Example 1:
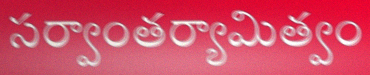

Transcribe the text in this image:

సర్వాంతర్యామిత్వం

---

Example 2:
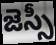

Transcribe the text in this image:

జెస్సీ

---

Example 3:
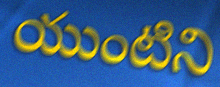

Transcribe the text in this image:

యుంటిని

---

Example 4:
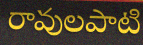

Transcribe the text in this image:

రావులపాటి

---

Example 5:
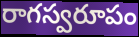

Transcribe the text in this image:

రాగస్వరూపం